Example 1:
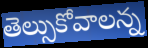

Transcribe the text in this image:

తెల్సుకోవాలన్న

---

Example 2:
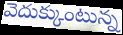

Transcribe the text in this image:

వెదుక్కుంటున్న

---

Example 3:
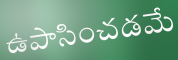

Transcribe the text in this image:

ఉపాసించడమే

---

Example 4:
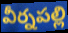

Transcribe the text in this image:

వీర్నపల్లి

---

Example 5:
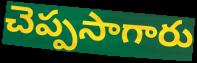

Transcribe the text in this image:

చెప్పసాగారు